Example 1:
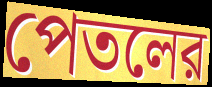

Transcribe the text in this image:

পেতলের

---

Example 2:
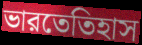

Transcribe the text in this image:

ভারতেতিহাস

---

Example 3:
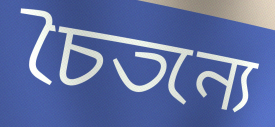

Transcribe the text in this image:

চৈতন্যে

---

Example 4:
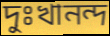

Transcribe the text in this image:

দুঃখানন্দ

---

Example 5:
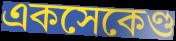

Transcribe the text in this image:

একসেকেণ্ড